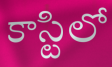
కాస్టిలో